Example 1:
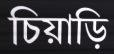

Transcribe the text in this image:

চিয়াড়ি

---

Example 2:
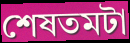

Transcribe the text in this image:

শেষতমটা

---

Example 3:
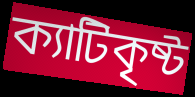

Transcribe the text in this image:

ক্যাটিকৃষ্ট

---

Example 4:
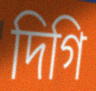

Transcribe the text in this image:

দিগি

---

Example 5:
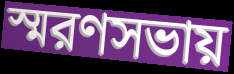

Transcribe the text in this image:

স্মরণসভায়